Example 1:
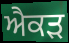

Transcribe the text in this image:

ਐਕੜ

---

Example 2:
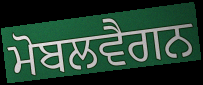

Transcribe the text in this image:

ਮੋਬਲਵੈਗਨ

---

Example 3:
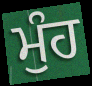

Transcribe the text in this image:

ਮੁੰਹ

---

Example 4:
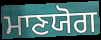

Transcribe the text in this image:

ਮਾਣਯੋਗ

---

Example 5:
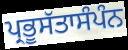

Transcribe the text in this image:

ਪ੍ਰਭੂਸੱਤਾਸੰਪੰਨ